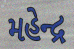
મહેન્દ્ર